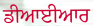
ਡੀਆਈਆਰ